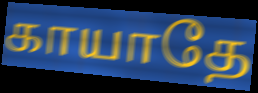
காயாதே